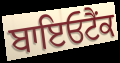
ਬਾਇਓਟੈਂਕ